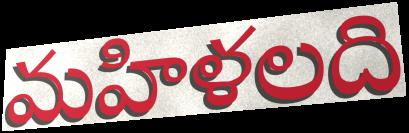
మహిళలది